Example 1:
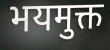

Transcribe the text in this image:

भयमुक्त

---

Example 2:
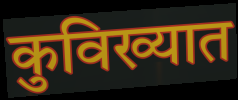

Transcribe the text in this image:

कुविख्यात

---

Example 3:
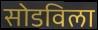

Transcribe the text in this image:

सोडविला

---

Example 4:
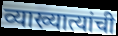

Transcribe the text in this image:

व्याख्यात्यांची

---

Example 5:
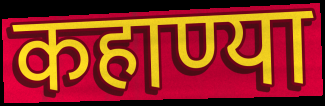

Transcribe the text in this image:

कहाण्या